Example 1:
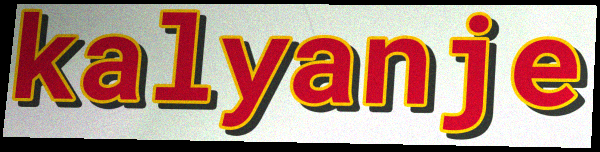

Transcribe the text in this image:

kalyanje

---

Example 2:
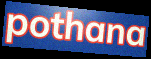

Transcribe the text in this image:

pothana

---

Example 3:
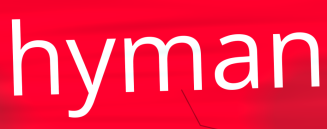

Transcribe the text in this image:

hyman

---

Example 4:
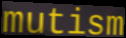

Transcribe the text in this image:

mutism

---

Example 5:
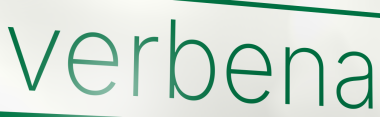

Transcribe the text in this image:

verbena